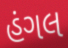
હંગલ